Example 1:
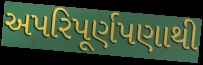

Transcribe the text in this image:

અપરિપૂર્ણપણાથી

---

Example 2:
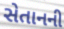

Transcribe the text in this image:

સેતાનની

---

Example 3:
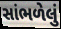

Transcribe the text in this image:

સાંભળેલું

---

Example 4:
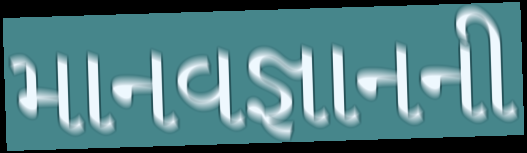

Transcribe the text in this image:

માનવજ્ઞાનની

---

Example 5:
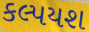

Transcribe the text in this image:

કલ્પયશ